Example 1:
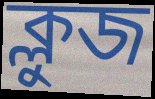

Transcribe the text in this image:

ক্লুজ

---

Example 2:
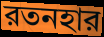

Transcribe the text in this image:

রতনহার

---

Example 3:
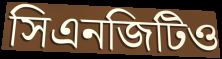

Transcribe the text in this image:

সিএনজিটিও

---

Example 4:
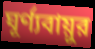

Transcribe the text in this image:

ঘূর্ণ্যবায়ুর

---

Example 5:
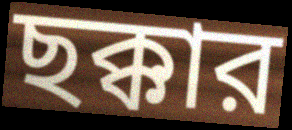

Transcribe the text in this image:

ছক্কার